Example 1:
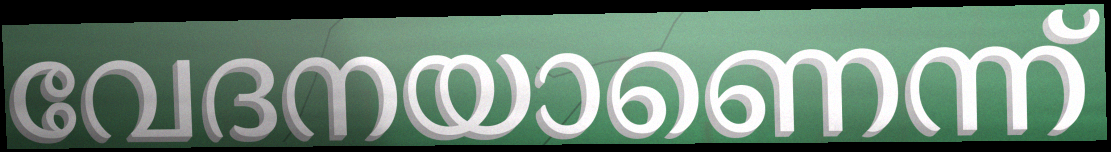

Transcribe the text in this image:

വേദനയാണെന്ന്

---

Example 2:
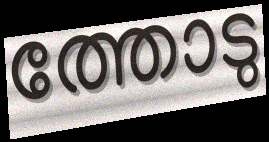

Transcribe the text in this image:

ത്തോടു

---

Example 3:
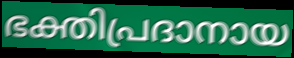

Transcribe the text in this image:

ഭക്തിപ്രദാനായ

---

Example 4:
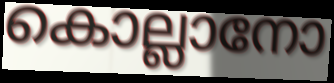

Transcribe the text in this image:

കൊല്ലാനോ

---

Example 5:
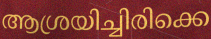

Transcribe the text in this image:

ആശ്രയിച്ചിരിക്കെ